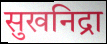
सुखनिद्रा